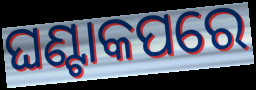
ଘଣ୍ଟାକପରେ